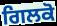
ਗਿਲਕੋ